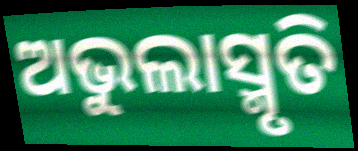
ଅଭୁଲାସ୍ମୃତି